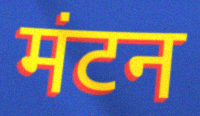
मंटन